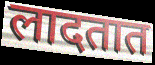
लादतात